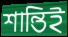
শান্তিই